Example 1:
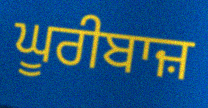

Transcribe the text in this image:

ਘੂਰੀਬਾਜ਼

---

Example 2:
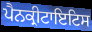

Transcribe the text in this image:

ਪੈਨਕ੍ਰੀਟਾਇਟਿਸ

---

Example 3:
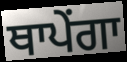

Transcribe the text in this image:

ਥਾਪੇਂਗਾ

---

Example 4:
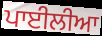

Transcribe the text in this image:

ਪਾਈਲੀਆ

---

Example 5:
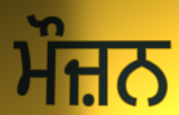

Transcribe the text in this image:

ਮੌਜ਼ਨ